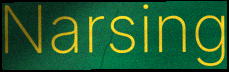
Narsing